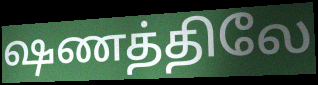
ஷணத்திலே